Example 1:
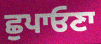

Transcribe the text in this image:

ਛੁਪਾਓਣਾ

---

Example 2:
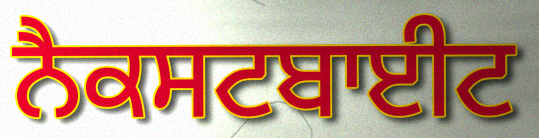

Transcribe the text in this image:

ਨੈਕਸਟਬਾਈਟ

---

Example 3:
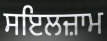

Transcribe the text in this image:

ਸਇਲਜ਼ਾਮ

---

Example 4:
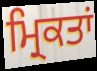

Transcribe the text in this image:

ਮ੍ਰਿਕਤਾਂ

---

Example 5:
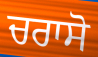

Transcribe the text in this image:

ਚਰਾਸੋ